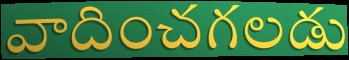
వాదించగలడు